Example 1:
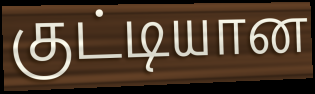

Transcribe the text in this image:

குட்டியான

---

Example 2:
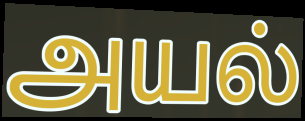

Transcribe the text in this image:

அயல்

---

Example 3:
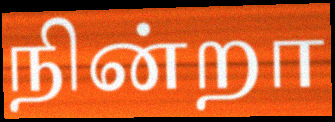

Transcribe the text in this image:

நின்றா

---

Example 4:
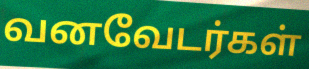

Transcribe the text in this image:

வனவேடர்கள்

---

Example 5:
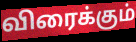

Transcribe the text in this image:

விரைக்கும்